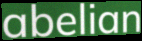
abelian